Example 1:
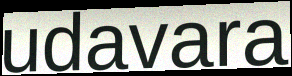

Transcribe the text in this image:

udavara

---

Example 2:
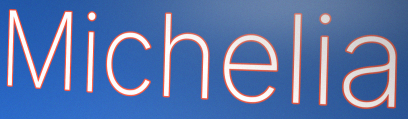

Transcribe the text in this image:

Michelia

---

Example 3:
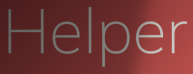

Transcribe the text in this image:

Helper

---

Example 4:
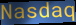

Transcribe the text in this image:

Nasdaq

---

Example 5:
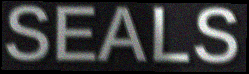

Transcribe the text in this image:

SEALS